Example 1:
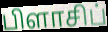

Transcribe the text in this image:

பிளாசிப்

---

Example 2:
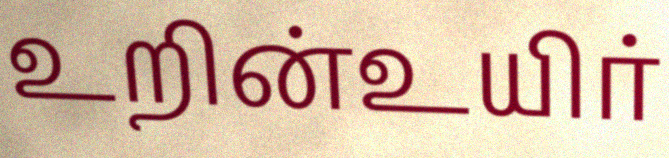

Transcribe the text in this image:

உறின்உயிர்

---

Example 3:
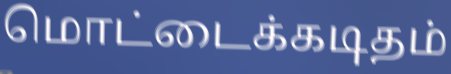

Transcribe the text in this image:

மொட்டைக்கடிதம்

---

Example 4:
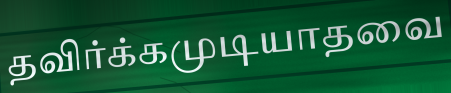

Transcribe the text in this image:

தவிர்க்கமுடியாதவை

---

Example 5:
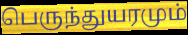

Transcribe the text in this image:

பெருந்துயரமும்